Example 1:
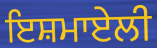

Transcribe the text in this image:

ਇਸ਼ਮਾਏਲੀ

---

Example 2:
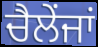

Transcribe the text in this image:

ਚੈਲੇਂਜਾਂ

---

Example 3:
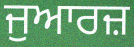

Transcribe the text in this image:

ਜੁਆਰਜ਼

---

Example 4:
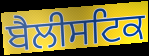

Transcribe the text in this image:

ਬੈਲੀਸਟਿਕ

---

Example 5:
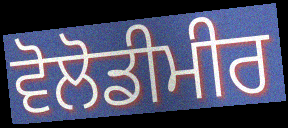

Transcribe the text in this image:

ਵੋਲੋਡੀਮੀਰ